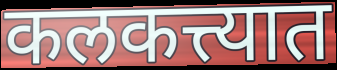
कलकत्त्यात